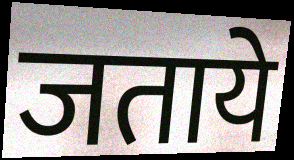
जताये